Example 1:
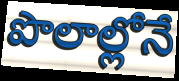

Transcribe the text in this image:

పొలాల్లోనే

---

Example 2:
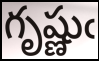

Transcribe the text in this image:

గృష్ణుఁ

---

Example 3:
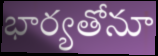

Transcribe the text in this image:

భార్యతోనూ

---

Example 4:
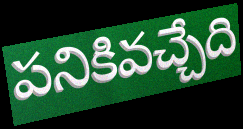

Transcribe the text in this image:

పనికివచ్చేది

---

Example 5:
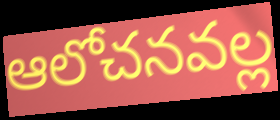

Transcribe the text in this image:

ఆలోచనవల్ల